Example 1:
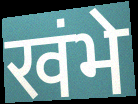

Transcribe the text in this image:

खंभे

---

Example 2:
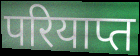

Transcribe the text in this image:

परियाप्त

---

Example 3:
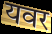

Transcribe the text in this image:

यवर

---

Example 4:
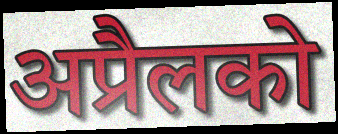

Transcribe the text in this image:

अप्रैलको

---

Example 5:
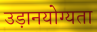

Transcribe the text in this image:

उड़ानयोग्यता